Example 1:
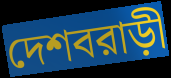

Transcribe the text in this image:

দেশবরাড়ী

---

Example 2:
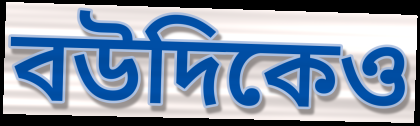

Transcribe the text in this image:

বউদিকেও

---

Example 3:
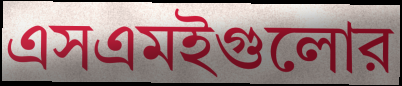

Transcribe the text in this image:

এসএমইগুলোর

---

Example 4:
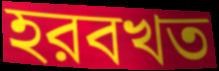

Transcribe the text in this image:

হরবখত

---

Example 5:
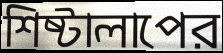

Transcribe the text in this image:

শিষ্টালাপের